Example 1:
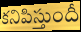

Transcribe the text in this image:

కనిపిస్తుందీ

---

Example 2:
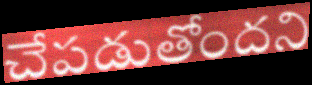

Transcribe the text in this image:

చేపడుతోందని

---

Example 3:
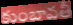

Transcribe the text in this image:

కుంబావతీ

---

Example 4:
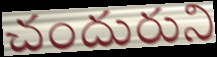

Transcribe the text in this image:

చందురుని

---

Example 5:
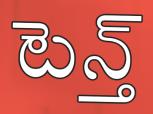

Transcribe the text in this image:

టెన్త్